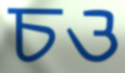
চও